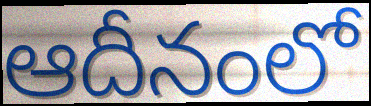
ఆదీనంలో